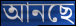
আনছে